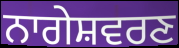
ਨਾਗੇਸ਼ਵਰਣ